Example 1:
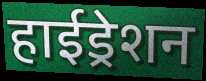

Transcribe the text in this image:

हाईड्रेशन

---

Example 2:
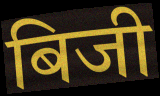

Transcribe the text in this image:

बिजी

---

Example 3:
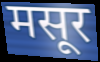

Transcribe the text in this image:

मसूर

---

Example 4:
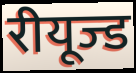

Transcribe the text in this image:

रीयूज्ड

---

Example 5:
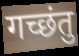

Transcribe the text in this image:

गच्छंतु